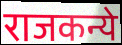
राजकन्ये